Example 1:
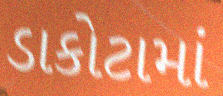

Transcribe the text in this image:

ડાકોટામાં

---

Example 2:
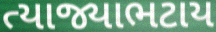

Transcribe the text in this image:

ત્યાજ્યાભટાય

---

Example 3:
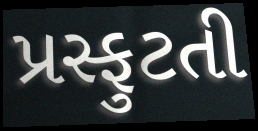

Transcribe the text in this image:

પ્રસ્ફુટતી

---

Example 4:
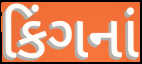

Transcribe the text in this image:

કિંગનાં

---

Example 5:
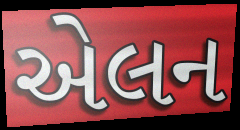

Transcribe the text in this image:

એલન